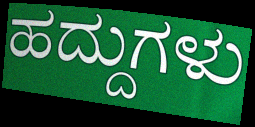
ಹದ್ದುಗಳು